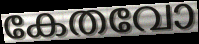
കേതവോ